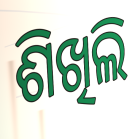
ଶିଖିଲି